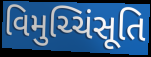
વિમુચ્ચિંસૂતિ